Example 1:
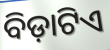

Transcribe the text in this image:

ବିଡ଼ାଟିଏ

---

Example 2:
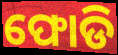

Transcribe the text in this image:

ଫୋଡି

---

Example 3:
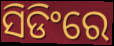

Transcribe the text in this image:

ସିଡିଂରେ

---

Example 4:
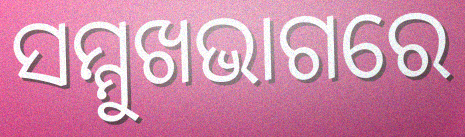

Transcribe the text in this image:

ସମ୍ମୁଖଭାଗରେ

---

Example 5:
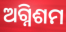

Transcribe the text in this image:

ଅଗ୍ନିଶମ